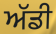
ਅੱਡੀ